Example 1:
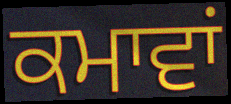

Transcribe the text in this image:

ਕਮਾਵਾਂ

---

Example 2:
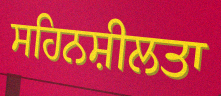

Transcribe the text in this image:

ਸਹਿਨਸ਼ੀਲਤਾ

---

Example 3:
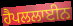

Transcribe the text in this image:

ਹੈਪਲਲਾਈਨ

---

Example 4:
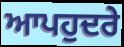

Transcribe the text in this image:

ਆਪਹੁਦਰੇ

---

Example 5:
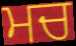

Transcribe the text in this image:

ਮਚ